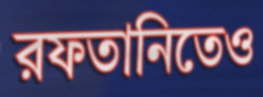
রফতানিতেও